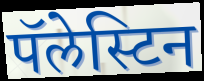
पॅलेस्टिन